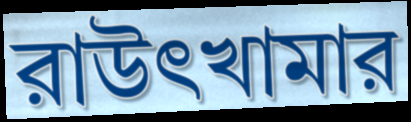
রাউৎখামার